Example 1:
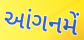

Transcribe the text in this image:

આંગનમેં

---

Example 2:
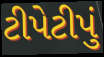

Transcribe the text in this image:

ટીપેટીપું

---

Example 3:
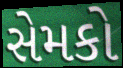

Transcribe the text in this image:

સેમકો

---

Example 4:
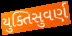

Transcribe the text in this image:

યુક્તિસુવર્ણ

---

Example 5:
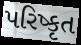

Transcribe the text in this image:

પરિષ્કૃત